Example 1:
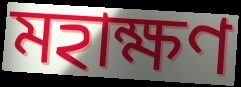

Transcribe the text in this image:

মহাক্ষণ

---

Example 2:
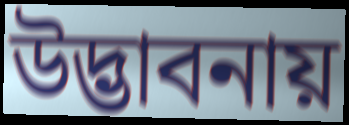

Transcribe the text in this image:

উদ্ভাবনায়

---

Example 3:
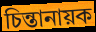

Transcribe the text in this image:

চিন্তানায়ক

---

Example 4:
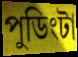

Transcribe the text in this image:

পুডিংটা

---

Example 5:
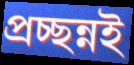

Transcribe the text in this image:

প্রচ্ছন্নই